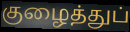
குழைத்துப்